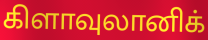
கிளாவுலானிக்